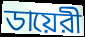
ডায়েরী